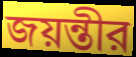
জয়ন্তীর